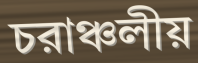
চরাঞ্চলীয়